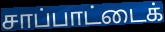
சாப்பாட்டைக்